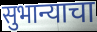
सुभान्याचा